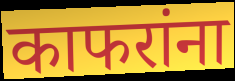
काफरांना